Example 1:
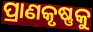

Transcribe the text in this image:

ପ୍ରାଣକୃଷ୍ଣକୁ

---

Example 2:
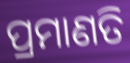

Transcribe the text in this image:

ପ୍ରମାଣତି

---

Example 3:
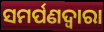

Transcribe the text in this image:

ସମର୍ପଣଦ୍ୱାରା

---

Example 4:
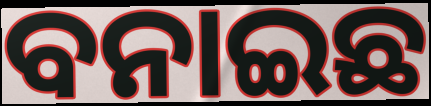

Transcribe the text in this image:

ବନାଇଛ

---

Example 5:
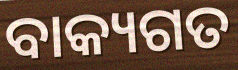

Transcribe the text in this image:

ବାକ୍ୟଗତ